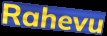
Rahevu